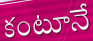
కంటూనే